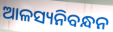
ଆଳସ୍ୟନିବନ୍ଧନ